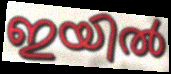
ഇയിൽ